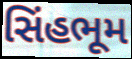
સિંહભૂમ